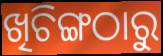
ଖିଚିଙ୍ଗଠାରୁ